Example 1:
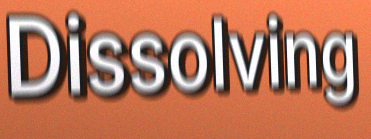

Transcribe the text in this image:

Dissolving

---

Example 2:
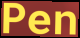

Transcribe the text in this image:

Pen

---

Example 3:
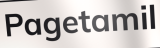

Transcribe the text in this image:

Pagetamil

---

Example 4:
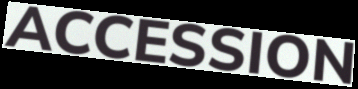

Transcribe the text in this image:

ACCESSION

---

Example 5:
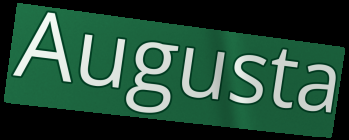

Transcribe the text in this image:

Augusta